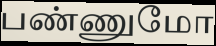
பண்ணுமோ